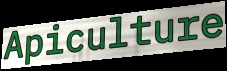
Apiculture